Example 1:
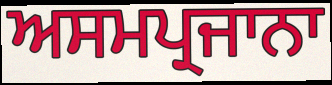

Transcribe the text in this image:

ਅਸਮਪ੍ਰਜਾਨਾ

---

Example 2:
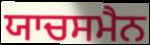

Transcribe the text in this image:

ਯਾਚਸਮੈਨ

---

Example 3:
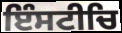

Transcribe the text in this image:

ਇੰਸਟੀਚਿ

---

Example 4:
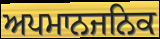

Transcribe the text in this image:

ਅਪਮਾਨਜਨਿਕ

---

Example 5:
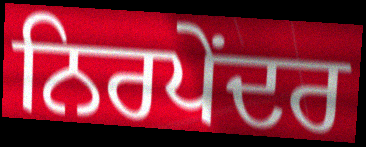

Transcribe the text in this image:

ਨਿਰਪੇਂਦਰ